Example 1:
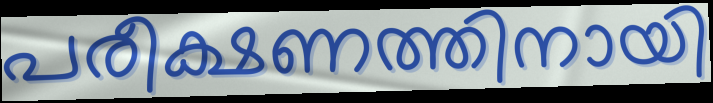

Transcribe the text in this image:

പരീക്ഷണത്തിനായി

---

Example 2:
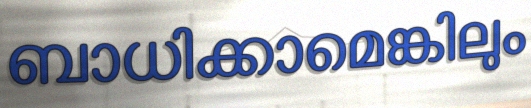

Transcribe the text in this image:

ബാധിക്കാമെങ്കിലും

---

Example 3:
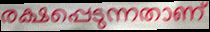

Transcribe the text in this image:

രക്ഷപ്പെടുന്നതാണ്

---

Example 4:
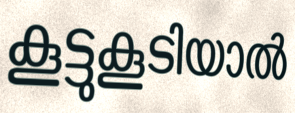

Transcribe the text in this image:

കൂട്ടുകൂടിയാൽ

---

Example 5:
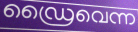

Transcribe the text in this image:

ഡ്രൈവെന്ന